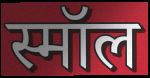
स्मॉल